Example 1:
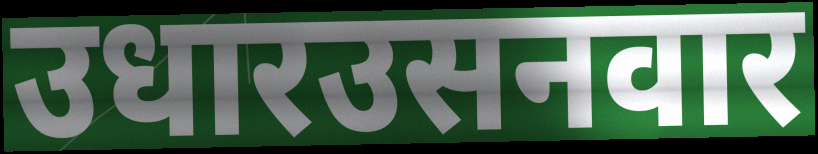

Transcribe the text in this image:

उधारउसनवार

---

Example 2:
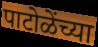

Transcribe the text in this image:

पाटोळेंच्या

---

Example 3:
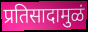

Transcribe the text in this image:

प्रतिसादामुळं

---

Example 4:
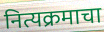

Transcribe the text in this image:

नित्यक्रमाचा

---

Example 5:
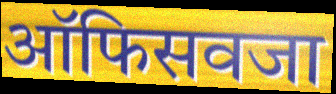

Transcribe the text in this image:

ऑफिसवजा